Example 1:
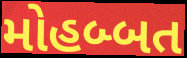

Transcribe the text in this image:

મોહબ્બત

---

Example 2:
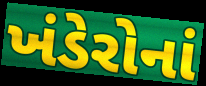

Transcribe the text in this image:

ખંડેરોનાં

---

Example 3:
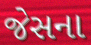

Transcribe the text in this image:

જેસના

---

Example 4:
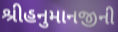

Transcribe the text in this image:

શ્રીહનુમાનજીની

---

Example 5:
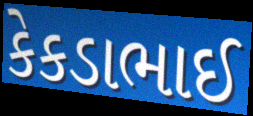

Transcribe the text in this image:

કેકડાભાઈ